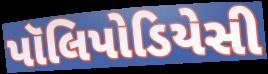
પૉલિપોડિયેસી